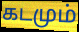
கடமும்